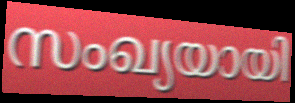
സംഖ്യയായി